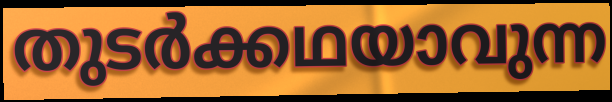
തുടർക്കഥയാവുന്ന